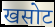
खसोट